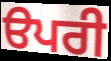
ੳਪਰੀ